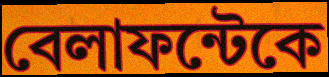
বেলাফন্টেকে